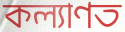
কল্যাণত